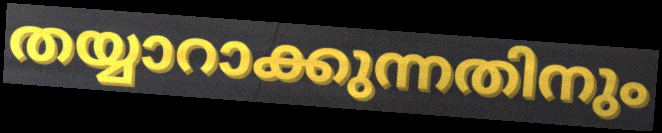
തയ്യാറാക്കുന്നതിനും